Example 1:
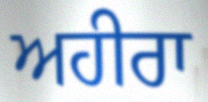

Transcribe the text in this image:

ਅਹੀਰਾ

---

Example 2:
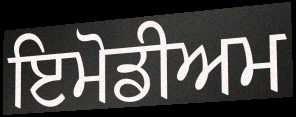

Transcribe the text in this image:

ਇਮੋਡੀਅਮ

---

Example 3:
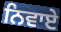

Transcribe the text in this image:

ਨਿਵਾਏ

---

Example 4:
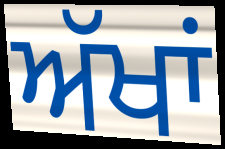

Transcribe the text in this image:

ਅੱਖਾਂ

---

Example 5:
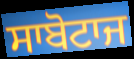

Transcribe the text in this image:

ਸਾਬੋਟਾਜ